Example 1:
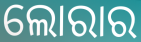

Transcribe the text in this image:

ଲୋରାର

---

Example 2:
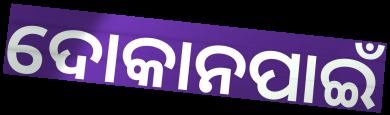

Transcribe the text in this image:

ଦୋକାନପାଇଁ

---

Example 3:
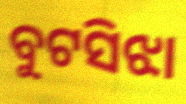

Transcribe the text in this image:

ବୁଟସିଝା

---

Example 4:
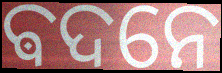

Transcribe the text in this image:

ଵଦନେ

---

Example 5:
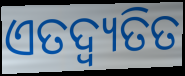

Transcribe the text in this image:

ଏତଦ୍ବ୍ୟତିତ